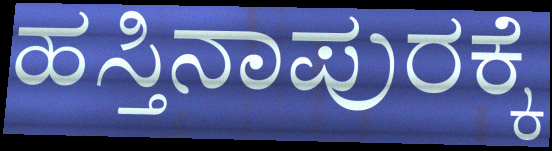
ಹಸ್ತಿನಾಪುರಕ್ಕೆ